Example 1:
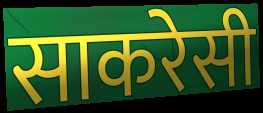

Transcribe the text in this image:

साकरेसी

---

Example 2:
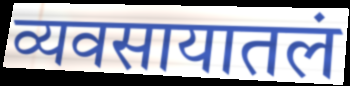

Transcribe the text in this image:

व्यवसायातलं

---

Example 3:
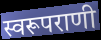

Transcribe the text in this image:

स्वरूपराणी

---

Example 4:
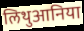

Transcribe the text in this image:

लिथुआनिया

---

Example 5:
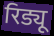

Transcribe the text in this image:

रिड्यू